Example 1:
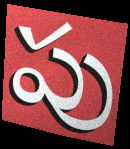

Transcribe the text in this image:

పు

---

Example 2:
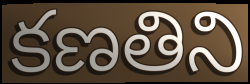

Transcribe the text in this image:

కణతిని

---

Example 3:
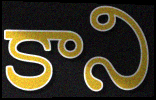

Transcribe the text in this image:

కాని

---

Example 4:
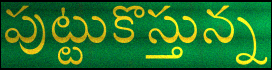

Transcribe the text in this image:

పుట్టుకొస్తున్న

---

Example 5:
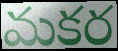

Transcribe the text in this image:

మకర